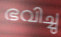
ഭവിച്ചു